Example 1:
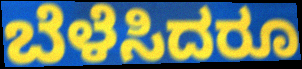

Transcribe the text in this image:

ಬೆಳೆಸಿದರೂ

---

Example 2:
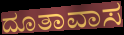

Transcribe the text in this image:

ದೂತಾವಾಸ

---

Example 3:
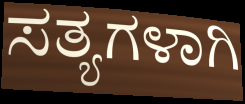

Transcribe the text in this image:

ಸತ್ಯಗಳಾಗಿ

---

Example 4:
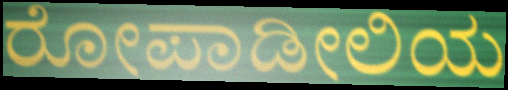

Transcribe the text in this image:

ರೋಪಾಡೀಲಿಯ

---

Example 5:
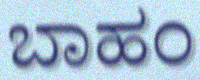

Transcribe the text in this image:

ಬಾಹಂ